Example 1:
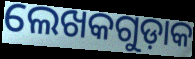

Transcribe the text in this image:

ଲେଖକଗୁଡ଼ାକ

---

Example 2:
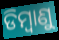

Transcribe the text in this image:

ଡିମ୍ବାଣୁ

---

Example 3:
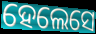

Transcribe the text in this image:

ହେଲେସେ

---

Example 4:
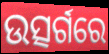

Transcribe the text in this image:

ଉତ୍ସର୍ଗରେ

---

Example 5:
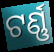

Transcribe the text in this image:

ଟର୍ଣ୍ଣ